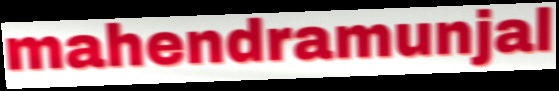
mahendramunjal